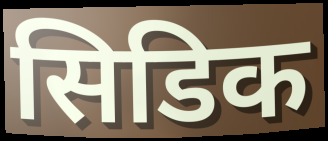
सिडिक